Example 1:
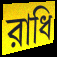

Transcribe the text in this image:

রাধি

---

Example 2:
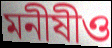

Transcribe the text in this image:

মনীষীও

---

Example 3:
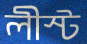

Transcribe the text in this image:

লীস্ট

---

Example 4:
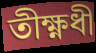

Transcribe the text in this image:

তীক্ষ্ণধী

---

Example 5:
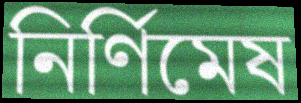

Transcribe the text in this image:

নির্ণিমেষ